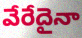
వేరేదైనా